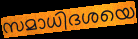
സമാധിദശയെ